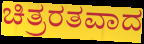
ಚಿತ್ರರತವಾದ